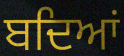
ਬਦਿਆਂ